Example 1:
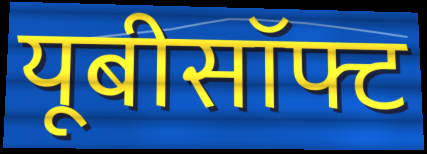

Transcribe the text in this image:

यूबीसॉफ्ट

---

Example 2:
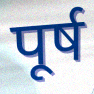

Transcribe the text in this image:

पूर्ष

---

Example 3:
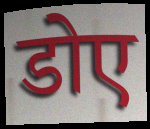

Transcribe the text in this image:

डोए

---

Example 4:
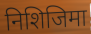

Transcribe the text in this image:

निशिजिमा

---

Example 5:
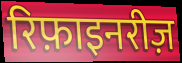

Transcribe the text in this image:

रिफ़ाइनरीज़